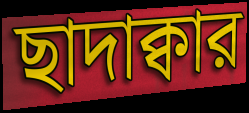
ছাদাক্বার